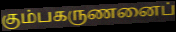
கும்பகருணனைப்